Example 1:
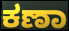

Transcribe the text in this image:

ಕಣಾ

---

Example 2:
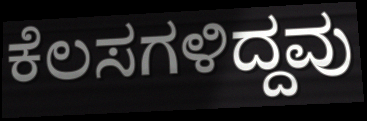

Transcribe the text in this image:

ಕೆಲಸಗಳಿದ್ದವು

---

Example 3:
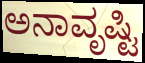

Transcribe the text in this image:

ಅನಾವೃಷ್ಟಿ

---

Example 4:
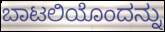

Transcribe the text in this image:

ಬಾಟಲಿಯೊಂದನ್ನು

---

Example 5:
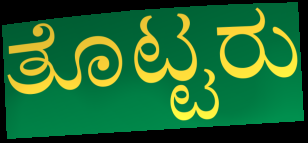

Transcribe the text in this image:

ತೊಟ್ಟರು